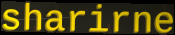
sharirne